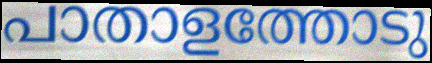
പാതാളത്തോടു